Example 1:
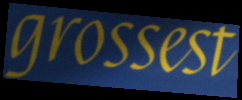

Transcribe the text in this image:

grossest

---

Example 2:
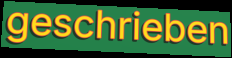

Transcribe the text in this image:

geschrieben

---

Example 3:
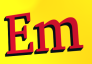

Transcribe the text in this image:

Em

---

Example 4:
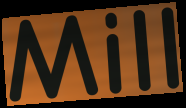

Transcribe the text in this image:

Mill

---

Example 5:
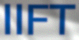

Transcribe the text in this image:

IIFT